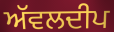
ਅੱਵਲਦੀਪ